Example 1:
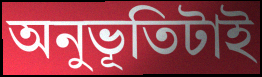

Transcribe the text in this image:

অনুভূতিটাই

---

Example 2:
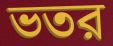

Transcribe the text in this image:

ভতর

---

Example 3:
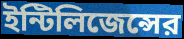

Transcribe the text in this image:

ইন্টিলিজেন্সের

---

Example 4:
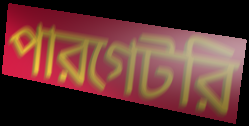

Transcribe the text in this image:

পারগেটরি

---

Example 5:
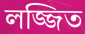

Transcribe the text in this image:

লজ্জিত